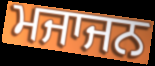
ਮਜਾਜਨ